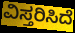
ವಿಸ್ತರಿಸಿದೆ